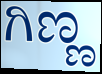
ಗಿಣ್ಣ